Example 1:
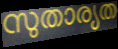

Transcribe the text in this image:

സുതാര്യത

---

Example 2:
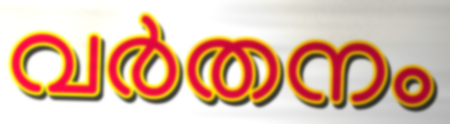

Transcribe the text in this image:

വർതനം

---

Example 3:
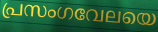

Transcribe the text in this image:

പ്രസംഗവേലയെ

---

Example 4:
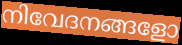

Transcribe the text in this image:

നിവേദനങ്ങളോ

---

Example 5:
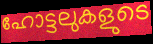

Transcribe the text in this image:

ഹോട്ടലുകളുടെ